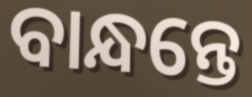
ବାନ୍ଧନ୍ତେ